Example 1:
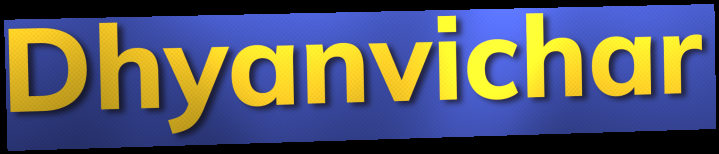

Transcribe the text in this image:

Dhyanvichar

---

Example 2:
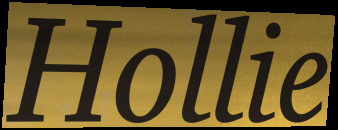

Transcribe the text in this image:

Hollie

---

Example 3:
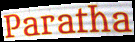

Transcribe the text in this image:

Paratha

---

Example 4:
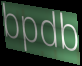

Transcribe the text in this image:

bpdb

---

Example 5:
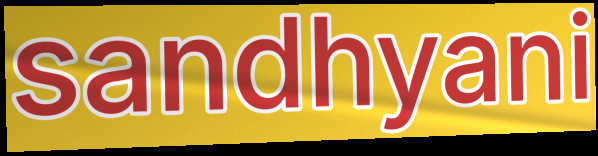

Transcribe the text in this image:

sandhyani